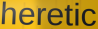
heretic